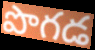
పొగడ